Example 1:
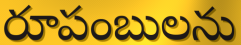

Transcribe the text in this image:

రూపంబులను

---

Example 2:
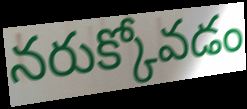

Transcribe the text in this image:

నరుక్కోవడం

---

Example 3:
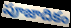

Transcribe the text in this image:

పూజాదికం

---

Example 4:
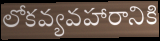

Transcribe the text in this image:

లోకవ్యవహారానికి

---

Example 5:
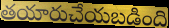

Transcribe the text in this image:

తయారుచేయబడింది